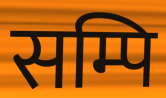
सम्पि